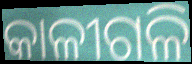
କାଳୀଗଳି